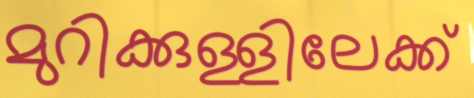
മുറിക്കുള്ളിലേക്ക്